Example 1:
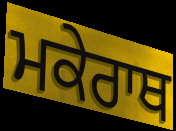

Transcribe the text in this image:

ਮਕੇਰਾਥ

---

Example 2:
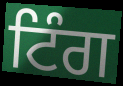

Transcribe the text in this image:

ਟਿੰਗ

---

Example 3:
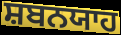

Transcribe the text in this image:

ਸ਼ਬਨਯਾਹ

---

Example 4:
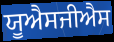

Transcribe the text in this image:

ਯੂਐਸਜੀਐਸ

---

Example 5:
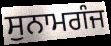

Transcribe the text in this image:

ਸੁਨਾਮਗੰਜ